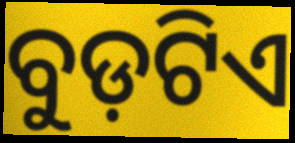
ବୁଡ଼ଟିଏ